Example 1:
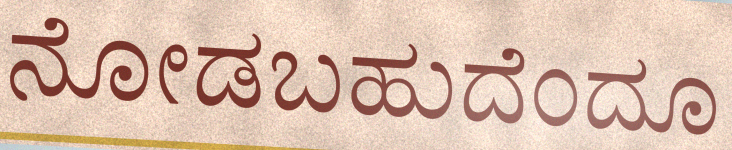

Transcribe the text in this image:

ನೋಡಬಹುದೆಂದೂ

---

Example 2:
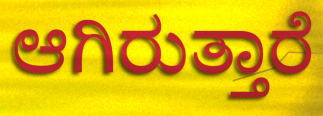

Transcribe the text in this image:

ಆಗಿರುತ್ತಾರೆ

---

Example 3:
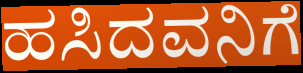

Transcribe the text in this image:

ಹಸಿದವನಿಗೆ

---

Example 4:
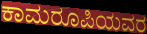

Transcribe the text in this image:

ಕಾಮರೂಪಿಯವರ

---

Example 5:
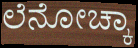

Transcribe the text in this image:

ಲೆನೋಚ್ಕಾ